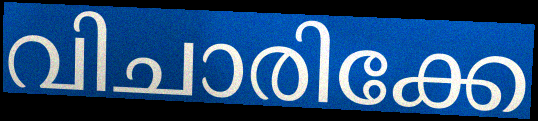
വിചാരിക്കേ